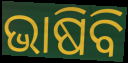
ଭାଷିବି